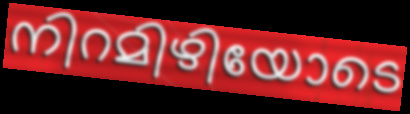
നിറമിഴിയോടെ